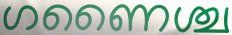
ഗണൈശ്ച